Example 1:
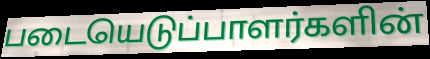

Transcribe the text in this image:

படையெடுப்பாளர்களின்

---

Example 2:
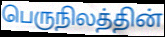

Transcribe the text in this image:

பெருநிலத்தின்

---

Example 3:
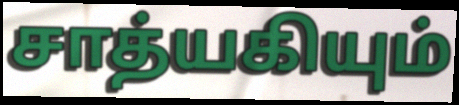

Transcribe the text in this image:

சாத்யகியும்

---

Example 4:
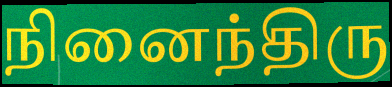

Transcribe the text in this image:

நினைந்திரு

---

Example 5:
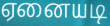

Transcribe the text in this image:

ஏனையடி